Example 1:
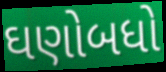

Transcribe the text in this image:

ઘણોબધો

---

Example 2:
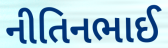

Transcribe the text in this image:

નીતિનભાઈ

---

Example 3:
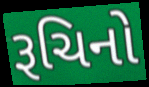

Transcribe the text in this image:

રૂચિનો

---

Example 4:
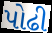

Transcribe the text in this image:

પોઢી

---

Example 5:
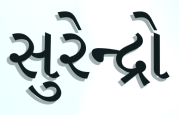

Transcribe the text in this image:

સુરેન્દ્રો